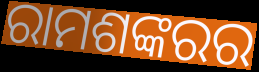
ରାମଶଙ୍କରର